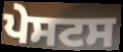
ਪੇਸਟਸ